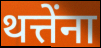
थत्तेंना